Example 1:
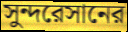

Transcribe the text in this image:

সুন্দরেসানের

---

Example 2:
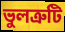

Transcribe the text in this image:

ভুলত্রুটি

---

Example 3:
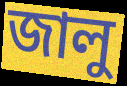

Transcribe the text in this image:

জালু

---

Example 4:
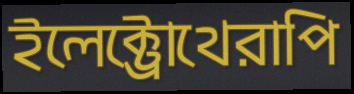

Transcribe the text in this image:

ইলেক্ট্রোথেরাপি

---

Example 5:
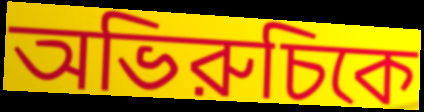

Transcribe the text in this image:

অভিরুচিকে